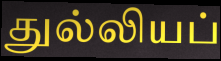
துல்லியப்